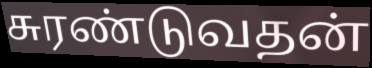
சுரண்டுவதன்